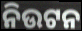
ନିଉଟନ